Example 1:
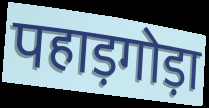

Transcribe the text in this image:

पहाड़गोड़ा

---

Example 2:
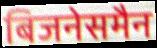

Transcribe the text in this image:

बिजनेसमैन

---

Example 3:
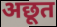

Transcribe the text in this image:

अछूत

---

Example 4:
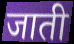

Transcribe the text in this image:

जाती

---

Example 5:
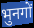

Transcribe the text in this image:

भुनगों